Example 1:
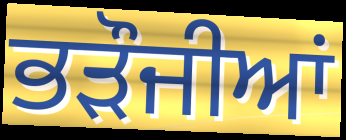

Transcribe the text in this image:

ਭੜੌਜੀਆਂ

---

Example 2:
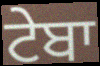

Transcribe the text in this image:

ਟੇਬਾ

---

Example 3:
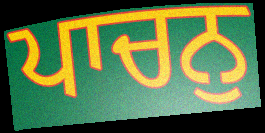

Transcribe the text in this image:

ਪਾਚਨੁ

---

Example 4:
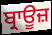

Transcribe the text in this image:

ਬ੍ਰਾਊਜ਼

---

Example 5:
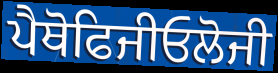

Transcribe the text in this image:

ਪੈਥੋਫਿਜੀਓਲੋਜੀ